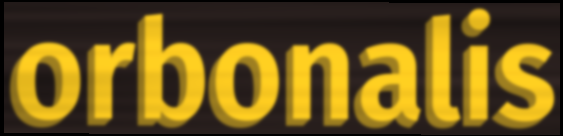
orbonalis